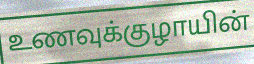
உணவுக்குழாயின்